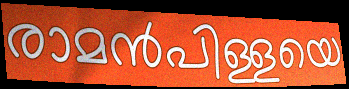
രാമൻപിള്ളയെ